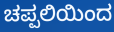
ಚಪ್ಪಲಿಯಿಂದ